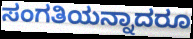
ಸಂಗತಿಯನ್ನಾದರೂ